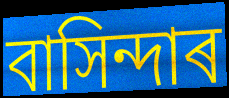
বাসিন্দাৰ